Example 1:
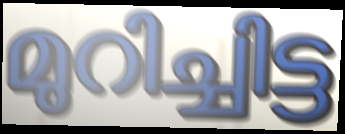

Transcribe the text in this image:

മുറിച്ചിട്ട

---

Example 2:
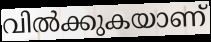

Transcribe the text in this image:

വിൽക്കുകയാണ്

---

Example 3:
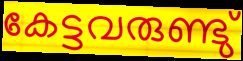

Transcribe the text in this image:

കേട്ടവരുണ്ടു്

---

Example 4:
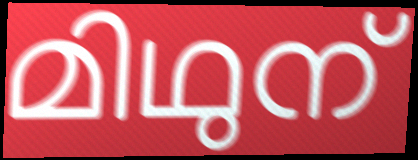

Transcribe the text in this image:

മിഥുന്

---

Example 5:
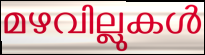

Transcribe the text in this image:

മഴവില്ലുകൾ